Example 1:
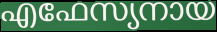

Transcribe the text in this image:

എഫേസ്യനായ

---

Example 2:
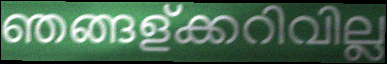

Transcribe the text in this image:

ഞങ്ങള്ക്കറിവില്ല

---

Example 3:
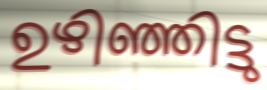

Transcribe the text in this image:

ഉഴിഞ്ഞിട്ടു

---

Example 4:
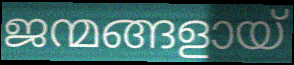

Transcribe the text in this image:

ജന്മങ്ങളായ്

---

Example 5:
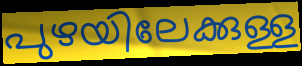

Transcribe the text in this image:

പുഴയിലേക്കുള്ള